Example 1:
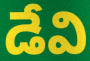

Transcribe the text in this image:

డేవి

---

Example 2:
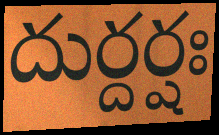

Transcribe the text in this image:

దుర్దర్షః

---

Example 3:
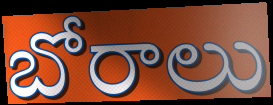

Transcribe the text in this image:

బోరాలు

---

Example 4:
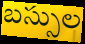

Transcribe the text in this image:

బస్సుల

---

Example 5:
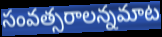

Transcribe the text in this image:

సంవత్సరాలన్నమాట